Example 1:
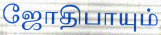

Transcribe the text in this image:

ஜோதிபாயும்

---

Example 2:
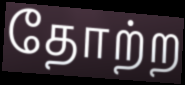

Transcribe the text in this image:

தோற்ற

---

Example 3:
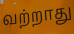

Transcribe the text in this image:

வற்றாது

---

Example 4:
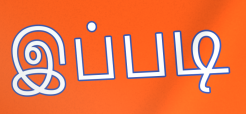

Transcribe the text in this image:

இப்படி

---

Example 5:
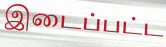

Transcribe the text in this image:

இடைப்பட்ட